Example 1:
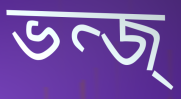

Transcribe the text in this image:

ভন্জ্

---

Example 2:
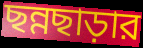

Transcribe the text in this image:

ছন্নছাড়ার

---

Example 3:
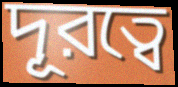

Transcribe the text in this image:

দূরত্বে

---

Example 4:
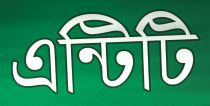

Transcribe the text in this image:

এন্টিটি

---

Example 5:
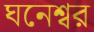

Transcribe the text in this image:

ঘনেশ্বর